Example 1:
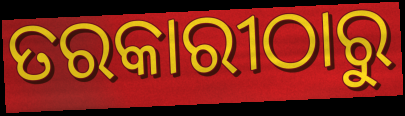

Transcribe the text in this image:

ତରକାରୀଠାରୁ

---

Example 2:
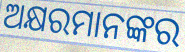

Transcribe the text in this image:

ଅକ୍ଷରମାନଙ୍କର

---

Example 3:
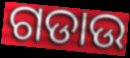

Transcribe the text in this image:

ଗଡାଉ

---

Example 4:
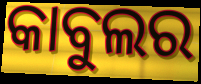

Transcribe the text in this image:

କାବୁଲର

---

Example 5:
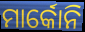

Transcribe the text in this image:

ମାର୍କୋନି